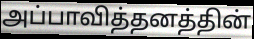
அப்பாவித்தனத்தின்